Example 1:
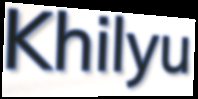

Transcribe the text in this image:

Khilyu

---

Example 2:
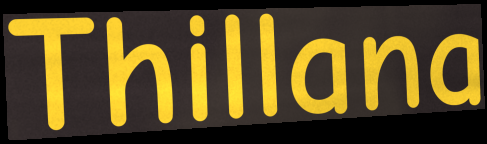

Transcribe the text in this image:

Thillana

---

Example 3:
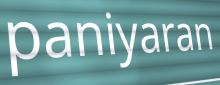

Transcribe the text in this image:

paniyaran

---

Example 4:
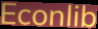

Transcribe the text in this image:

Econlib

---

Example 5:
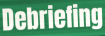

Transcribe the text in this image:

Debriefing